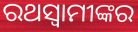
ରଥସ୍ୱାମୀଙ୍କର